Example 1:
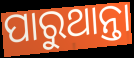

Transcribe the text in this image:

ପାରୁଥାନ୍ତା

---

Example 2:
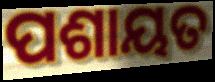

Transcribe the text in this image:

ପଶାୟତ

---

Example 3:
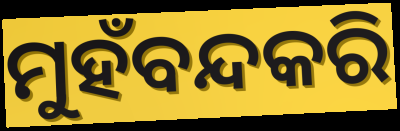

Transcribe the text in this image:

ମୁହଁବନ୍ଦକରି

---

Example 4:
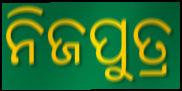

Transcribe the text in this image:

ନିଜପୁତ୍ର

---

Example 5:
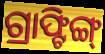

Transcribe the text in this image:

ଗ୍ରାଫ୍ଟିଙ୍ଗ୍